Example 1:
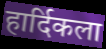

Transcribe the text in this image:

हार्दिकला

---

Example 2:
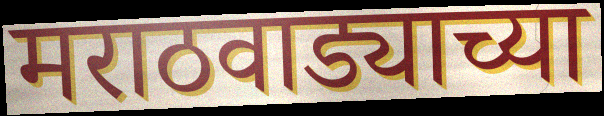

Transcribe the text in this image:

मराठवाड्याच्या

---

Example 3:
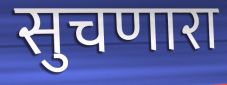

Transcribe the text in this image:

सुचणारा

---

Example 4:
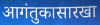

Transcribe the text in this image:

आगंतुकासारखा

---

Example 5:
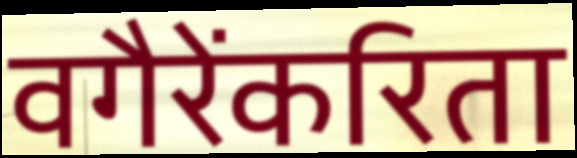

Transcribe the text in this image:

वगैरेंकरिता